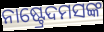
ନାଷ୍ଟ୍ରେଦମସଙ୍କ